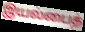
இயல்பைத்